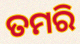
ତମରି